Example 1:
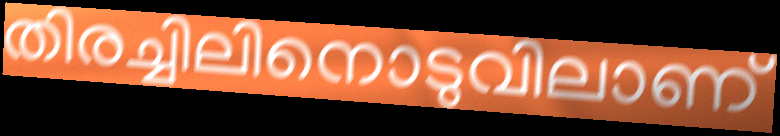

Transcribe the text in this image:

തിരച്ചിലിനൊടുവിലാണ്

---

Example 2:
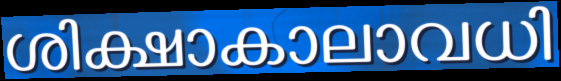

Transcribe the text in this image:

ശിക്ഷാകാലാവധി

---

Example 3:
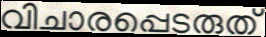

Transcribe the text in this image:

വിചാരപ്പെടരുത്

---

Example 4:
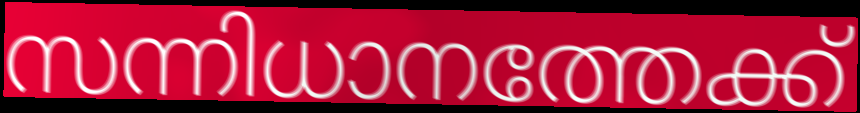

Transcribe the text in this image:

സന്നിധാനത്തേക്ക്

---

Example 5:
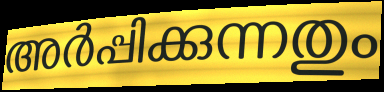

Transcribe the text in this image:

അർപ്പിക്കുന്നതും